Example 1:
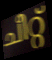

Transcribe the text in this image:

ചീറ്റ്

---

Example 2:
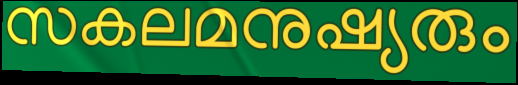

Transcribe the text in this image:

സകലമനുഷ്യരും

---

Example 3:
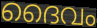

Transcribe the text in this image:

ദൈവം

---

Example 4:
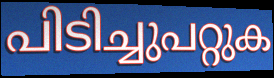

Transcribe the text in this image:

പിടിച്ചുപറ്റുക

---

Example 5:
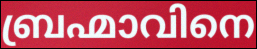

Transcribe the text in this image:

ബ്രഹ്മാവിനെ